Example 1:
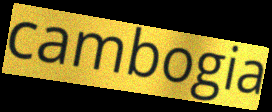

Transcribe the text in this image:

cambogia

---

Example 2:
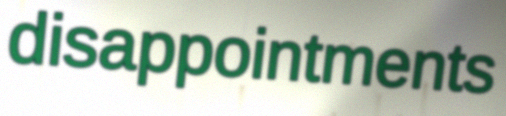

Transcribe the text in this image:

disappointments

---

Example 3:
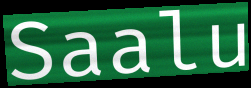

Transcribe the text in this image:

Saalu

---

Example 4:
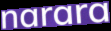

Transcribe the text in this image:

narara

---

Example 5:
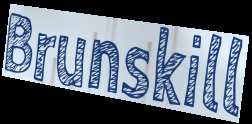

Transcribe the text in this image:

Brunskill